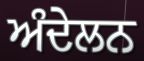
ਅੰਦੇਲਨ